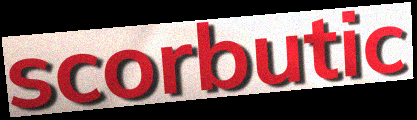
scorbutic